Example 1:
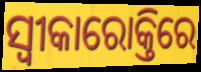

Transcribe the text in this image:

ସ୍ୱୀକାରୋକ୍ତିରେ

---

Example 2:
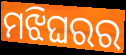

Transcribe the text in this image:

ମଝିଘରର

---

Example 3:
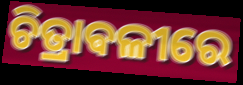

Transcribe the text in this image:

ଚିତ୍ରାଵଳୀରେ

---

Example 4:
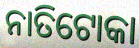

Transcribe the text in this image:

ନାତିଟୋକା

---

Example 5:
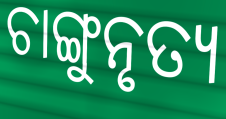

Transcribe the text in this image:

ଚାଙ୍ଗୁନୃତ୍ୟ